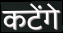
कटेंगे